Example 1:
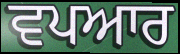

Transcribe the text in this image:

ਵਪਆਰ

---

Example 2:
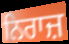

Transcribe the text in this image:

ਨਿਰਾਜ਼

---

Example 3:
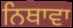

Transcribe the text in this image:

ਨਿਥਾਵਾ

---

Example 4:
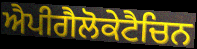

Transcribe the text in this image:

ਐਪੀਗੈਲੋਕੇਟੈਚਿਨ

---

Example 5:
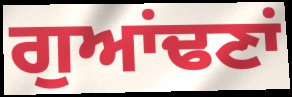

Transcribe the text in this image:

ਗੁਆਂਢਣਾਂ